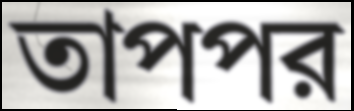
তাপপর